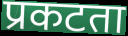
प्रकटता